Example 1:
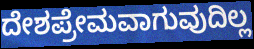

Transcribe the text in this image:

ದೇಶಪ್ರೇಮವಾಗುವುದಿಲ್ಲ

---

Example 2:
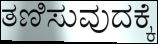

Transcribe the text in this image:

ತಣಿಸುವುದಕ್ಕೆ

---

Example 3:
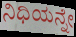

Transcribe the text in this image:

ನಿಧಿಯನ್ನೇ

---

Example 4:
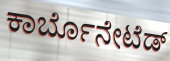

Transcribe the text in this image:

ಕಾರ್ಬೊನೇಟೆಡ್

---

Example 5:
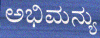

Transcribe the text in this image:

ಅಭಿಮನ್ಯು